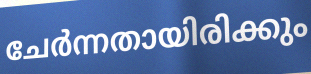
ചേർന്നതായിരിക്കും